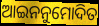
ଆଇନନୁମୋଦିତ